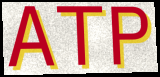
ATP